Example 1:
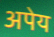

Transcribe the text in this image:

अपेय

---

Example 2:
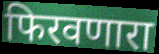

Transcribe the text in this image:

फिरवणारा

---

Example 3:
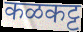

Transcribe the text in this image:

कळकट्ट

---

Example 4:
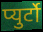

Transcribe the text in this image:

प्युर्टो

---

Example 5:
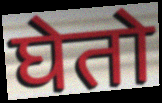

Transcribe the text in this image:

घेतो